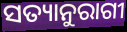
ସତ୍ୟାନୁରାଗୀ